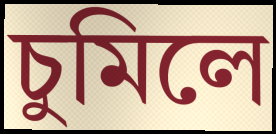
চুমিলে